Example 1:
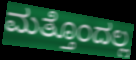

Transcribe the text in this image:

ಮತ್ತೊಂದಲ್ಲ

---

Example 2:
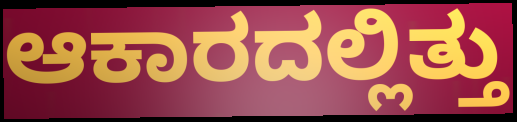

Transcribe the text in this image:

ಆಕಾರದಲ್ಲಿತ್ತು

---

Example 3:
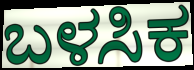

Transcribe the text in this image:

ಬಳಸಿಕ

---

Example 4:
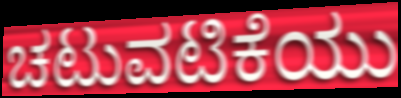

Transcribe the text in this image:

ಚಟುವಟಿಕೆಯು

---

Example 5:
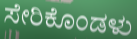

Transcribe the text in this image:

ಸೇರಿಕೊಂಡಳು